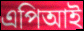
এপিআই